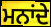
ਮਨਾਂਦੇ